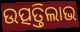
ଉତ୍ପତ୍ତିଲାଭ